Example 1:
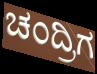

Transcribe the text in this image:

ಚಂದ್ರಿಗ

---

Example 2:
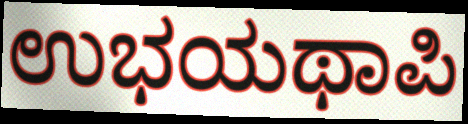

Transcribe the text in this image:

ಉಭಯಥಾಪಿ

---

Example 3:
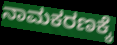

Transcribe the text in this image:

ನಾಮಕರಣಕ್ಕೆ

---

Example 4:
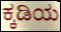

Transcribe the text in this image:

ಕ್ಕಡಿಯ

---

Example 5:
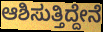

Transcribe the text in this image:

ಆಶಿಸುತ್ತಿದ್ದೇನೆ